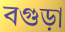
বগুড়া